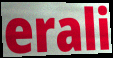
erali